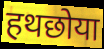
हथछोया